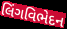
લિંગવિભેદન